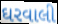
ઘરવાલી